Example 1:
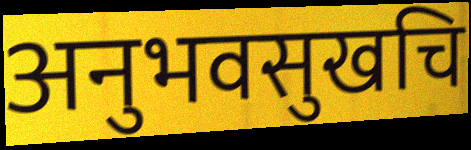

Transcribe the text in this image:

अनुभवसुखचि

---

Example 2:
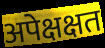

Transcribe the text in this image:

अपेक्षक्षत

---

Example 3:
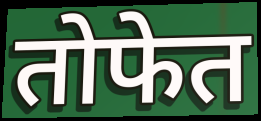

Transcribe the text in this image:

तोफेत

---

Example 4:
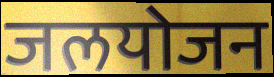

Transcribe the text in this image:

जलयोजन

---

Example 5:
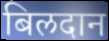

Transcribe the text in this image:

बिलदान